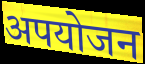
अपयोजन